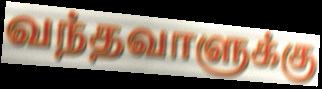
வந்தவாளுக்கு